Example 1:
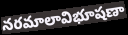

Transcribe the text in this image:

నరమాలావిభూషణా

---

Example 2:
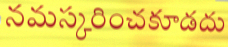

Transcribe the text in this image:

నమస్కరించకూడదు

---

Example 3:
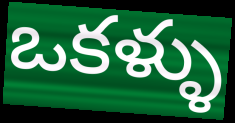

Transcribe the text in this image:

ఒకళ్ళు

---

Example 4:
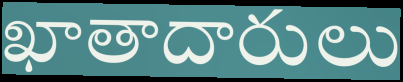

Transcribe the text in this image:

ఖాతాదారులు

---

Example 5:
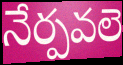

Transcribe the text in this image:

నేర్పవలె